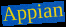
Appian